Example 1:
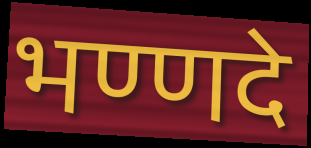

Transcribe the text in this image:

भण्णदे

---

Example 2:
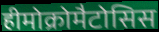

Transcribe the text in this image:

हीमोक्रोमैटोसिस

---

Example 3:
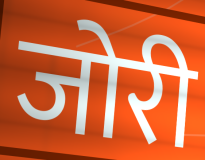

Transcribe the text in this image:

जोरी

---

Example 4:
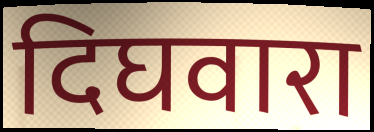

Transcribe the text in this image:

दिघवारा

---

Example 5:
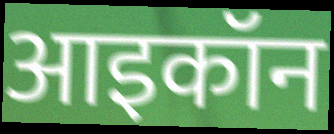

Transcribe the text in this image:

आइकॉन